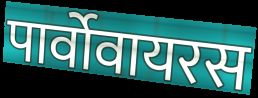
पार्वोवायरस